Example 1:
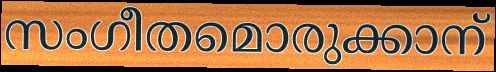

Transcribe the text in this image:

സംഗീതമൊരുക്കാന്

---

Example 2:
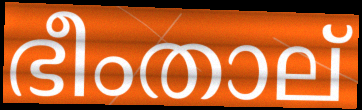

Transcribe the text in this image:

ഭീംതാല്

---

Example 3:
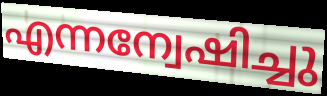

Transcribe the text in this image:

എന്നന്വേഷിച്ചു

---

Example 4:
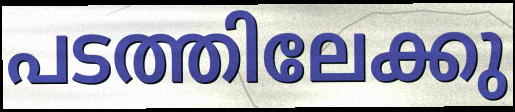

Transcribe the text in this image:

പടത്തിലേക്കു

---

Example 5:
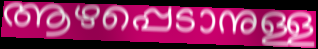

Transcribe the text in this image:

ആഴപ്പെടാനുള്ള